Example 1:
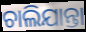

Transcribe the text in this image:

ଚାଲିଯାନ୍ତା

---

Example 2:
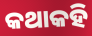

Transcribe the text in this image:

କଥାକହି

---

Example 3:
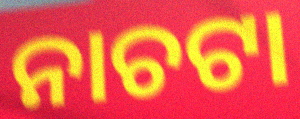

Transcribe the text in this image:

ନାଚଟା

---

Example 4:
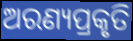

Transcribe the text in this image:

ଅରଣ୍ୟପ୍ରକୃତି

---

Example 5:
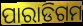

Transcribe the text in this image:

ପାରାଡିଗମ